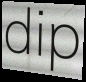
dip